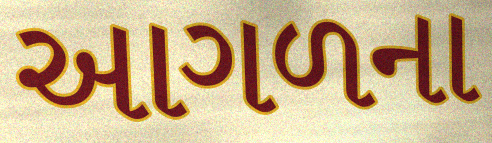
આગળના